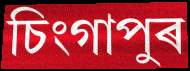
চিংগাপুৰ